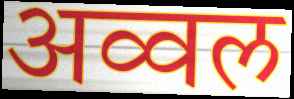
अव्वल